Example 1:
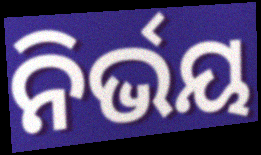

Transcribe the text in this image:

ନିର୍ଭୟ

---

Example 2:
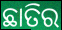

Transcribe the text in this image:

ଛାତିର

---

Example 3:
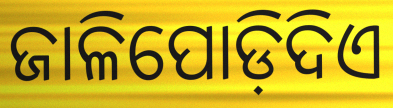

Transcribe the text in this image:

ଜାଳିପୋଡ଼ିଦିଏ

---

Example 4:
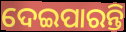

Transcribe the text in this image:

ଦେଇପାରନ୍ତି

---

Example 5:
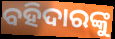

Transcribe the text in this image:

ବହିଦାରଙ୍କୁ